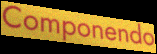
Componendo